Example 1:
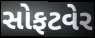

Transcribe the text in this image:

સોફટવેર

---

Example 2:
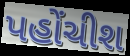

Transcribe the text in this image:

પહોંચીશ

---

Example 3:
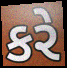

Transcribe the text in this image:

કરે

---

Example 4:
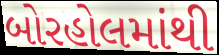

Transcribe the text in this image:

બોરહોલમાંથી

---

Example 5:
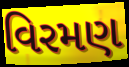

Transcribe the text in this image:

વિરમણ